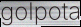
golpota